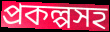
প্রকল্পসহ